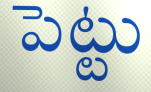
పెట్టు